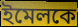
ইমেলকে